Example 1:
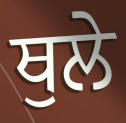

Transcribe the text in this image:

ਥੁਲੇ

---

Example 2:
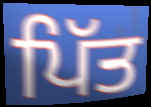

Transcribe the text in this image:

ਪਿੱਤ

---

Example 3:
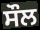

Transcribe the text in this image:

ਸੌਲ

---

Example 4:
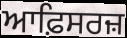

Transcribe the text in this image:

ਆਫ਼ਿਸਰਜ਼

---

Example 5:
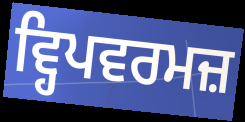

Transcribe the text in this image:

ਵ੍ਹਿਪਵਰਮਜ਼